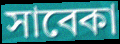
সাবেকা